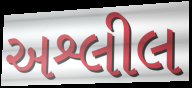
અશ્લીલ